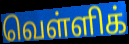
வெள்ளிக்